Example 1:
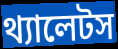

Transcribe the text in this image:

থ্যালেটস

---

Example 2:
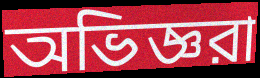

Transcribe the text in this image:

অভিজ্ঞরা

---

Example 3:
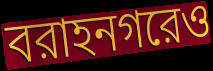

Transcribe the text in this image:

বরাহনগরেও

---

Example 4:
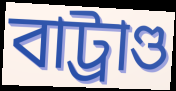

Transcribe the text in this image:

বাট্রাণ্ড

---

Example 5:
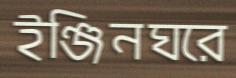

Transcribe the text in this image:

ইঞ্জিনঘরে